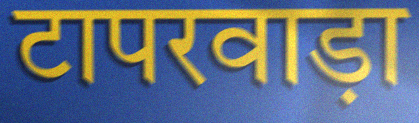
टापरवाड़ा